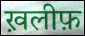
ख़लीफ़